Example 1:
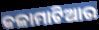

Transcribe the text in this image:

କଳାମାଟିଆର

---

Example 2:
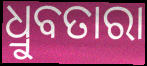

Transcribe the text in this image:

ଧ୍ରୁବତାରା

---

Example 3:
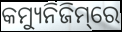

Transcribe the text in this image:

କମ୍ୟୁନିଜିମ୍‌ରେ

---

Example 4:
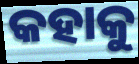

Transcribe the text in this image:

କହାକୁ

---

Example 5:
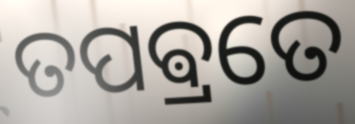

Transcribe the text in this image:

ତପଵ୍ରତେ